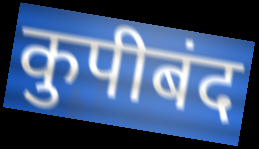
कुपीबंद